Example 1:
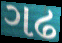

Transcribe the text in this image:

ગઢ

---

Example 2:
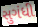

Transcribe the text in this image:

સુગંધી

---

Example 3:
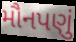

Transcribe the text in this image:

મૌનપણું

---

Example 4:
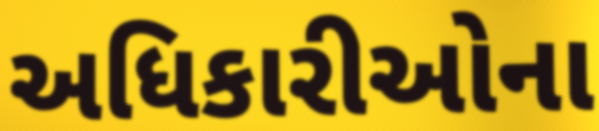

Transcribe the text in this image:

અધિકારીઓના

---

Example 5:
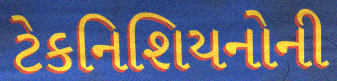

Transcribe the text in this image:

ટેકનિશિયનોની